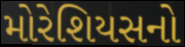
મોરેશિયસનો